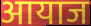
आयाज